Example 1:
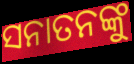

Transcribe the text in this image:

ସନାତନଙ୍କୁ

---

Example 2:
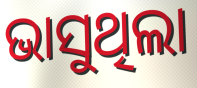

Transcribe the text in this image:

ଭାସୁଥିଲା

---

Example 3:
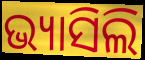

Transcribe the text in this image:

ଭ୍ୟାସିଲି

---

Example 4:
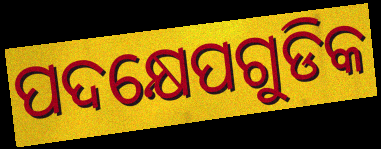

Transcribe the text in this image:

ପଦକ୍ଷେପଗୁଡିକ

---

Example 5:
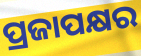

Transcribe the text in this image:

ପ୍ରଜାପକ୍ଷର